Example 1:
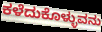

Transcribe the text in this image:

ಕಳೆದುಕೊಳ್ಳುವನು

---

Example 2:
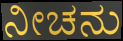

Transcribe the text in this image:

ನೀಚನು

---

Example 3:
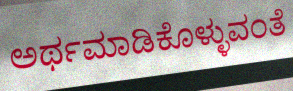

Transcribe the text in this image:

ಅರ್ಥಮಾಡಿಕೊಳ್ಳುವಂತೆ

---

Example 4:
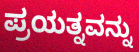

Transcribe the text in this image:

ಪ್ರಯತ್ನವನ್ನು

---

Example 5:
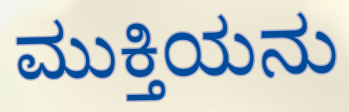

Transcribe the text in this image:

ಮುಕ್ತಿಯನು